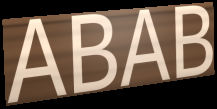
ABAB